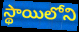
స్థాయిలోని